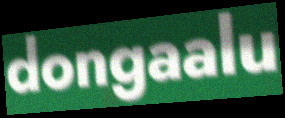
dongaalu